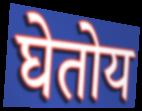
घेतोय